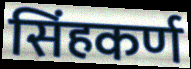
सिंहकर्ण